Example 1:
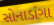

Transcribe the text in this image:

સોનાડાંગા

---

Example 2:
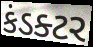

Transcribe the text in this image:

કંડક્ટર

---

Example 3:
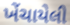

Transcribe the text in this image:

ખેંચાયેલી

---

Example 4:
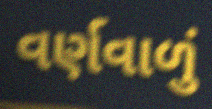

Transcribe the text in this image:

વર્ણવાળું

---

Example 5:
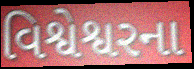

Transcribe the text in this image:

વિશ્વેશ્વરના